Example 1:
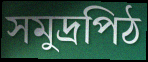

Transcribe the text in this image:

সমুদ্রপিঠ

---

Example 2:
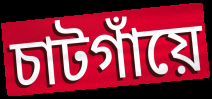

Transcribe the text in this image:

চাটগাঁয়ে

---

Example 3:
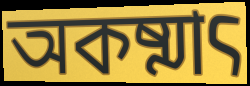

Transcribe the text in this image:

অকষ্মাৎ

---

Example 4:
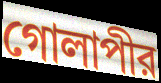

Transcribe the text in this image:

গোলাপীর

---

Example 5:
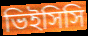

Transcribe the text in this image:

ভিইসিসি